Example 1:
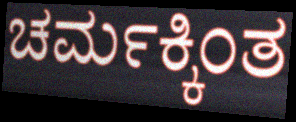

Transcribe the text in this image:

ಚರ್ಮಕ್ಕಿಂತ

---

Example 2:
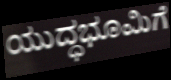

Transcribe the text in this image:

ಯುದ್ಧಭೂಮಿಗೆ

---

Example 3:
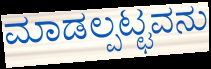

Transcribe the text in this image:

ಮಾಡಲ್ಪಟ್ಟವನು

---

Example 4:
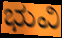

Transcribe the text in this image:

ಭುವಿ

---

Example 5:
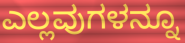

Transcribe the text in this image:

ಎಲ್ಲವುಗಳನ್ನೂ